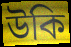
উকি